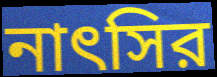
নাৎসির